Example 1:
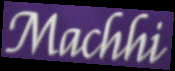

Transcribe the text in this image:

Machhi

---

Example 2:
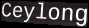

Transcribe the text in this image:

Ceylong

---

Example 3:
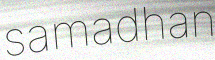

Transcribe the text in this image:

samadhan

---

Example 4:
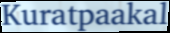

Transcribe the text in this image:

Kuratpaakal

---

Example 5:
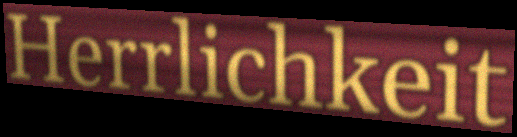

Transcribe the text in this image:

Herrlichkeit